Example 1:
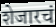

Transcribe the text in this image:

शेजारचं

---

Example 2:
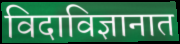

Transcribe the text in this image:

विदाविज्ञानात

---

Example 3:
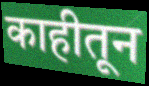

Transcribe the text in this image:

काहीतून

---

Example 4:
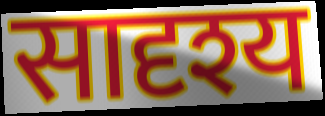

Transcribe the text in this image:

सादृश्य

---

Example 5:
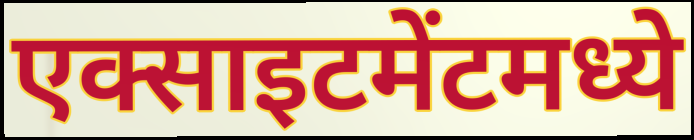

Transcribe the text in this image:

एक्साइटमेंटमध्ये